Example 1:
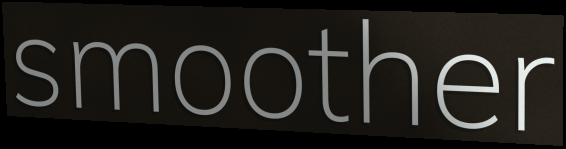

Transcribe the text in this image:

smoother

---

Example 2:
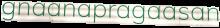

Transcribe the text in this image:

gnaanapragaasan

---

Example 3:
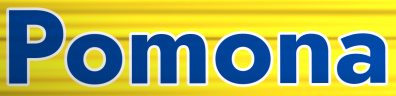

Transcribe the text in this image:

Pomona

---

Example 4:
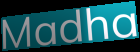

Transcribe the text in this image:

Madha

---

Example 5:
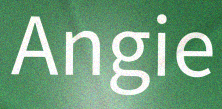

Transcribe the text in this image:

Angie